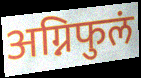
अग्निफुलं